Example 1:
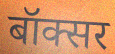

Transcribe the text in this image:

बॉक्सर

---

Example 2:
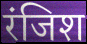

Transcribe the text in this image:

रंजिश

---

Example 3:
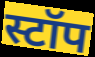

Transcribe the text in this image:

स्टॉप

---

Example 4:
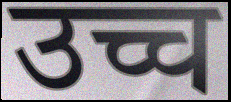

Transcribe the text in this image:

उच्च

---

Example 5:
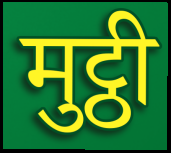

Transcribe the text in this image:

मुट्ठी